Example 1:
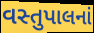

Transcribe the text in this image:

વસ્તુપાલનાં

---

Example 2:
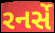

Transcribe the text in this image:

રનર્સે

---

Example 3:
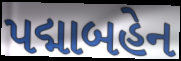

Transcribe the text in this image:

પદ્માબહેન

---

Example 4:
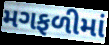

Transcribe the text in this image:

મગફળીમાં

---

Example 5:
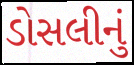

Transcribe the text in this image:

ડોસલીનું